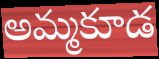
అమ్మకూడ